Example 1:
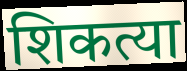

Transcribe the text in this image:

शिकत्या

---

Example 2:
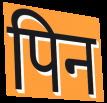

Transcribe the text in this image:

पिन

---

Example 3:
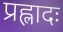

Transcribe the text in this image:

प्रह्लादः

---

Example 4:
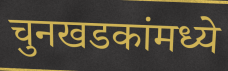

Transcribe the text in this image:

चुनखडकांमध्ये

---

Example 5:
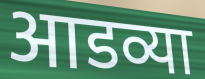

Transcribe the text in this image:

आडव्या